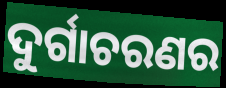
ଦୁର୍ଗାଚରଣର